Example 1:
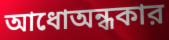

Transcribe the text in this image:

আধোঅন্ধকার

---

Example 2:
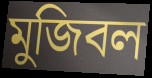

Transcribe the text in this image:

মুজিবল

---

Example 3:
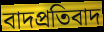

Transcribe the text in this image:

বাদপ্রতিবাদ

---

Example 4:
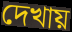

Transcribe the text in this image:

দেখায়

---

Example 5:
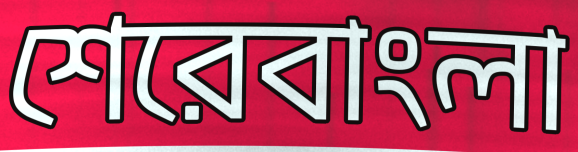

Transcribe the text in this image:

শেরেবাংলা